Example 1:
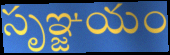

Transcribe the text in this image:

సృఞ్జయం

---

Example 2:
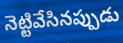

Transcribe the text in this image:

నెట్టివేసినప్పుడు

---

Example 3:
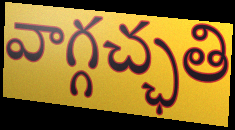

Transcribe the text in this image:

వాగ్గచ్ఛతి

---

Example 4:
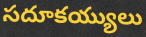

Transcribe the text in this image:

సదూకయ్యులు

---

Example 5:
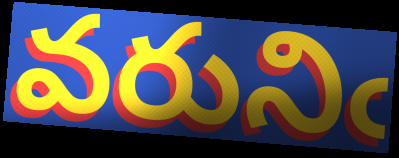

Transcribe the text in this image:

వరునిఁ